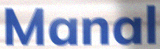
Manal